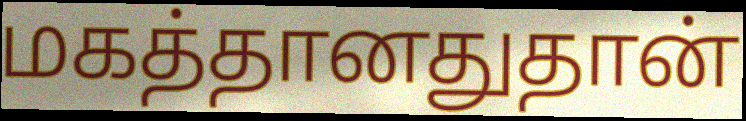
மகத்தானதுதான்